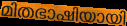
മിതഭാഷിയായി